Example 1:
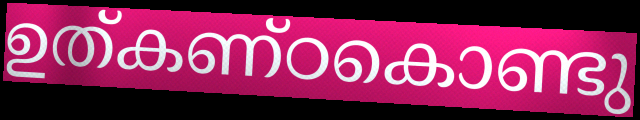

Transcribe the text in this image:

ഉത്കണ്ഠകൊണ്ടു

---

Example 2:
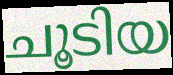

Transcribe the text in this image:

ചൂടിയ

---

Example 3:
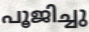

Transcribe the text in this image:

പൂജിച്ചു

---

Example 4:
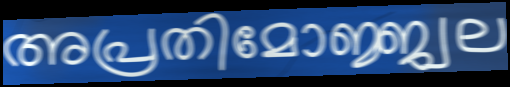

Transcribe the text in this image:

അപ്രതിമോജ്ജ്വല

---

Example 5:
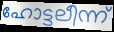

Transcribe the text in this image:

ഹോട്ടലീന്ന്